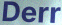
Derr